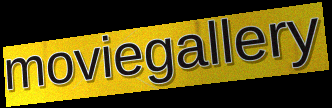
moviegallery